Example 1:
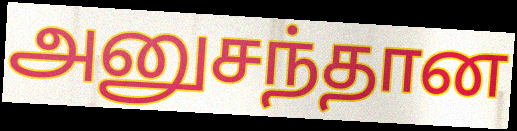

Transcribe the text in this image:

அனுசந்தான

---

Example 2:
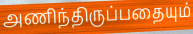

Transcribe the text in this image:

அணிந்திருப்பதையும்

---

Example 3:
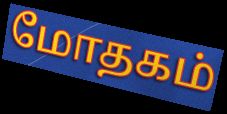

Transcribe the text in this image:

மோதகம்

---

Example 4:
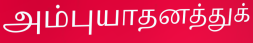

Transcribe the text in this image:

அம்புயாதனத்துக்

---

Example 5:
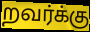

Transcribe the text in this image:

றவர்க்கு